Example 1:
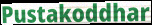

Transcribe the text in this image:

Pustakoddhar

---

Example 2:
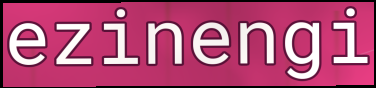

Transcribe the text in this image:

ezinengi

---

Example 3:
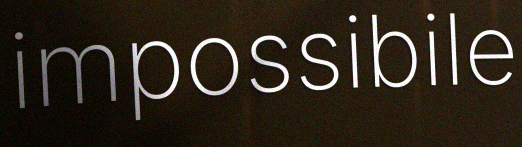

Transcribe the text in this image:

impossibile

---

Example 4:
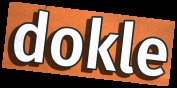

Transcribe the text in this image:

dokle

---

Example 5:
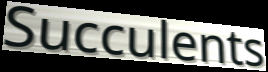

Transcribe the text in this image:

Succulents